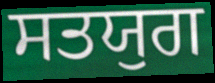
ਸਤਯੁਗ